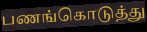
பணங்கொடுத்து